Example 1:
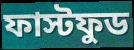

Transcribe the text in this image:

ফাস্টফুড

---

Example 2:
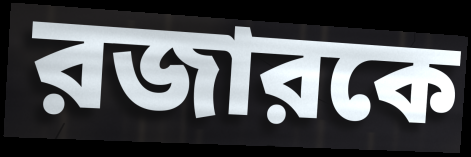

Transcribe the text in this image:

রজারকে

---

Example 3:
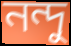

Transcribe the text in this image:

নন্দু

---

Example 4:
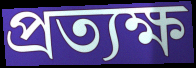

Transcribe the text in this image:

প্রত্যক্ষ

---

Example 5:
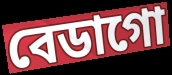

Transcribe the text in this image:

বেডাগো